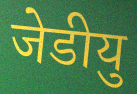
जेडीयु